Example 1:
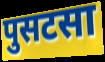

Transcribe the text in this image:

पुसटसा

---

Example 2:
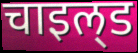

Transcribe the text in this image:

चाइल्ड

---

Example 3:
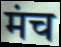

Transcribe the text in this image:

मंच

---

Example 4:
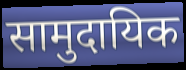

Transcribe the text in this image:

सामुदायिक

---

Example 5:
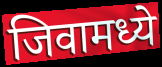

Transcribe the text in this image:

जिवामध्ये